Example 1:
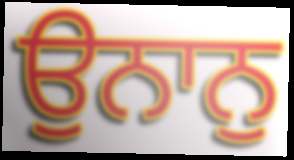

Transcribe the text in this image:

ਉਨਾਨੁ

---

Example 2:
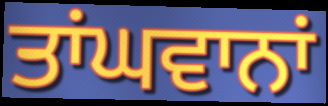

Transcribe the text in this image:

ਤਾਂਘਵਾਨਾਂ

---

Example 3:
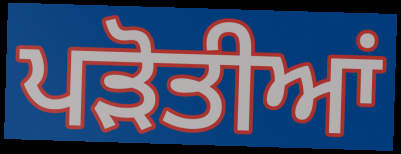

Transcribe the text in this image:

ਪੜੋਤੀਆਂ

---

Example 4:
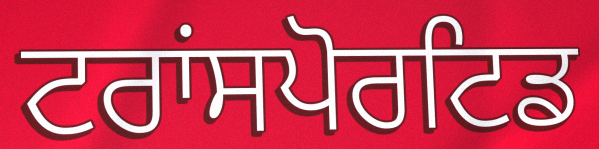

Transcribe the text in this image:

ਟਰਾਂਸਪੋਰਟਿਡ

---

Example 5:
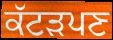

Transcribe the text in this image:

ਕੱਟੜਪਣ